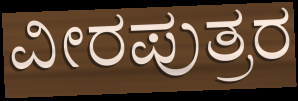
ವೀರಪುತ್ರರ